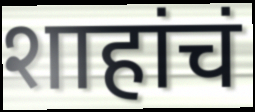
शाहांचं